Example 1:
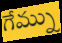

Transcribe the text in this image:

గేమ్ను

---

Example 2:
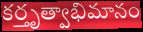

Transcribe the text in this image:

కర్తృత్వాభిమానం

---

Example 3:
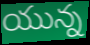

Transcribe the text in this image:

యున్న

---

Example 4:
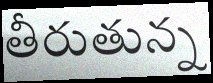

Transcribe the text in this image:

తీరుతున్న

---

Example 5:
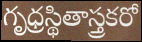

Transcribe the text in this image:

గృధ్రస్థితాస్త్రకరో